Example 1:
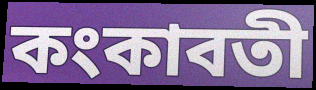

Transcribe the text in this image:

কংকাবতী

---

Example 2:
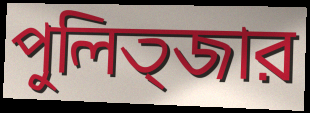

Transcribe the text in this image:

পুলিত্জার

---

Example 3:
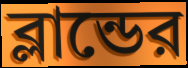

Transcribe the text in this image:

ব্লান্ডের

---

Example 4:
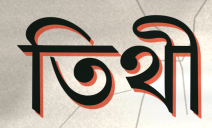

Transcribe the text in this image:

তিথী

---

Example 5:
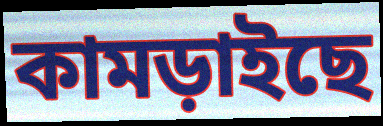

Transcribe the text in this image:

কামড়াইছে